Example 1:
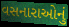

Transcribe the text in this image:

વસનારાઓનું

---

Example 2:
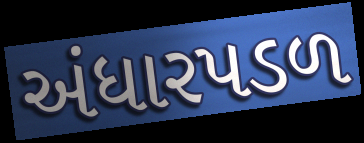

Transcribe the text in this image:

અંધારપડળ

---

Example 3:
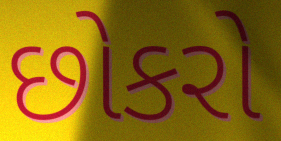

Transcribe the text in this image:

છોકરો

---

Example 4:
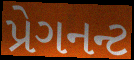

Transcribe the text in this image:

પ્રેગનન્ટ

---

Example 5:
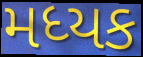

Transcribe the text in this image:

મધ્યક